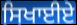
ਸਿਖਾਈਏ